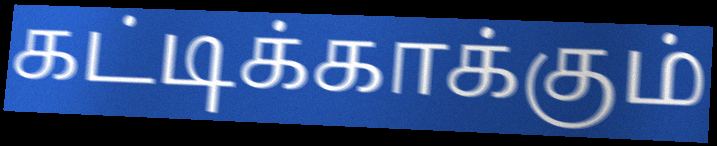
கட்டிக்காக்கும்